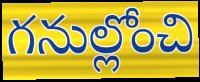
గనుల్లోంచి